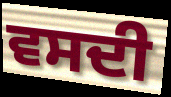
ਵਸਦੀ